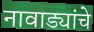
नावाड्यांचे